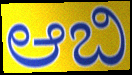
ಆಬಿ